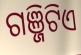
ଗଞ୍ଜିଟିଏ